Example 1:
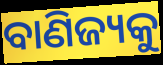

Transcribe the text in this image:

ବାଣିଜ୍ୟକୁ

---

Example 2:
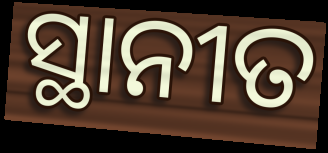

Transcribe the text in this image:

ସ୍ଥାନୀତ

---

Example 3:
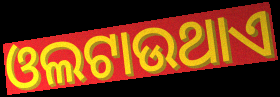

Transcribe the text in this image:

ଓଲଟାଉଥାଏ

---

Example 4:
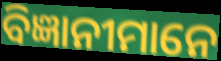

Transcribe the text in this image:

ବିଜ୍ଞାନୀମାନେ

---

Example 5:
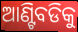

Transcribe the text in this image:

ଆଣ୍ଟିବଡିକୁ